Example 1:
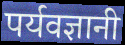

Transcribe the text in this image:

पर्यवज्ञानी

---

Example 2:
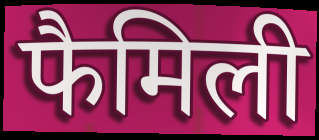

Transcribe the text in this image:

फैमिली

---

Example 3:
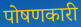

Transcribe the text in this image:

पोषणकारी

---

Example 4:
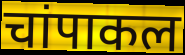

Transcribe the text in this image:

चांपाकल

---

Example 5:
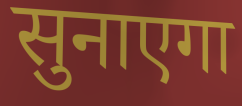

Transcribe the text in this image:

सुनाएगा